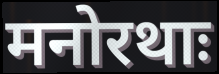
मनोरथाः